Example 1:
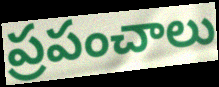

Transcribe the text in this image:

ప్రపంచాలు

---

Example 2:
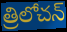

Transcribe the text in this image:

త్రిలోచన్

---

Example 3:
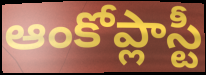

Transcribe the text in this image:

ఆంకోప్లాస్టీ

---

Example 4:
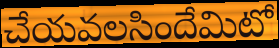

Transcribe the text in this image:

చేయవలసిందేమిటో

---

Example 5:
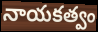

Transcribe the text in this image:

నాయకత్వం